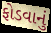
ફોડવાનું